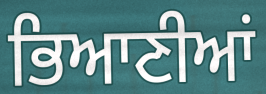
ਭਿਆਣੀਆਂ